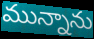
మున్నాను